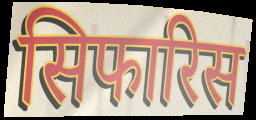
सिफारिस